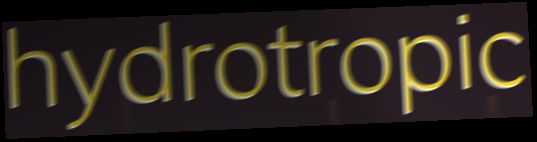
hydrotropic